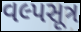
વલ્પસૂત્ર